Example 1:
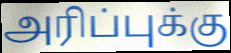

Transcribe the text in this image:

அரிப்புக்கு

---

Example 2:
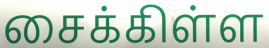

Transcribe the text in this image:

சைக்கிள்ள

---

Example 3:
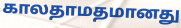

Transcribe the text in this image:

காலதாமதமானது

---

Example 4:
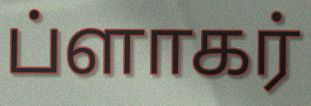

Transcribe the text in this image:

ப்ளாகர்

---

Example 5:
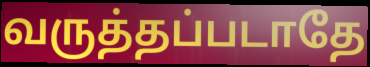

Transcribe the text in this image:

வருத்தப்படாதே